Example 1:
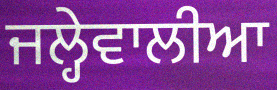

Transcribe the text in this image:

ਜਲ੍ਹੇਵਾਲੀਆ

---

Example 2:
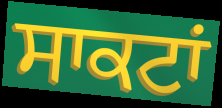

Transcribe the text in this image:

ਸਾਕਟਾਂ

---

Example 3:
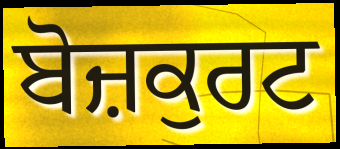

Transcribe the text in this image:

ਬੋਜ਼ਕੁਰਟ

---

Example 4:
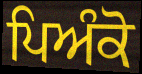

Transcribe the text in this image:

ਪਿਅੰਕੋ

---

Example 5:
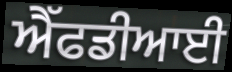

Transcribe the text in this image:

ਐੱਫਡੀਆਈ